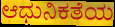
ಆಧುನಿಕತೆಯ